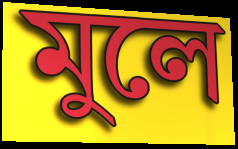
মুলে